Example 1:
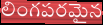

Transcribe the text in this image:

లింగపరమైన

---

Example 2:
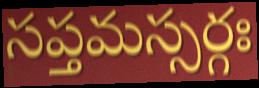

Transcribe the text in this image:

సప్తమస్సర్గః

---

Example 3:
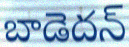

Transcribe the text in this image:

బాడెదన్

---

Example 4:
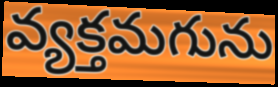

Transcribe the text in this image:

వ్యక్తమగును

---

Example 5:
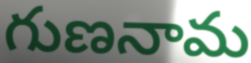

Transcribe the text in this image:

గుణనామ